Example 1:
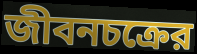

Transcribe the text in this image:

জীবনচক্রের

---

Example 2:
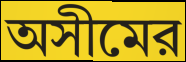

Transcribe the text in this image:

অসীমের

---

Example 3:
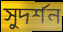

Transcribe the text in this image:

সুদর্শন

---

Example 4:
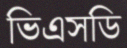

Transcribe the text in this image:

ভিএসডি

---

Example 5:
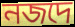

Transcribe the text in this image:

নজদে